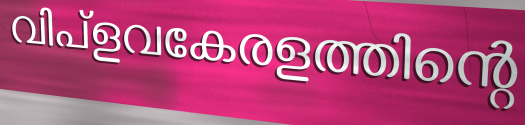
വിപ്ളവകേരളത്തിന്റെ